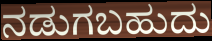
ನಡುಗಬಹುದು